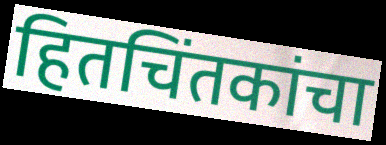
हितचिंतकांचा